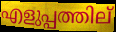
എളുപ്പത്തില്